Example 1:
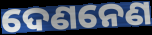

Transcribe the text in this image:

ଦେଣନେଣ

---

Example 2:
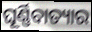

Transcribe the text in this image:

ଘୂର୍ଣ୍ଣିବାତ୍ୟାର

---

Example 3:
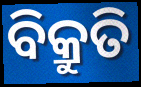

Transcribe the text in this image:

ବିକ୍ରୁତି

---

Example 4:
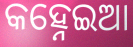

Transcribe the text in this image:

କହ୍ନେଇଆ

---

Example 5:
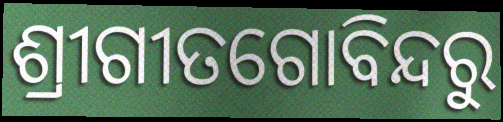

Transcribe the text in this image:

ଶ୍ରୀଗୀତଗୋବିନ୍ଦରୁ